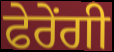
ਫੇਰੇਂਗੀ